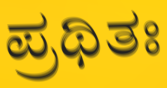
ಪ್ರಥಿತಃ